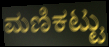
ಮಣಿಕಟ್ಟು